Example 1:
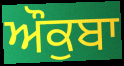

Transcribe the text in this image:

ਔਕੁਬਾ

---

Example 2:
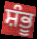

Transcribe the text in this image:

ਸ਼ੰਭੂ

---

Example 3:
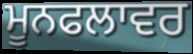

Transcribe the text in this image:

ਮੂਨਫਲਾਵਰ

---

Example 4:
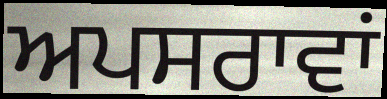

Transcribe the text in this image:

ਅਪਸਰਾਵਾਂ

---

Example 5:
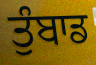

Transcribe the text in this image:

ਤੁੰਬਾਡ